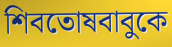
শিবতোষবাবুকে